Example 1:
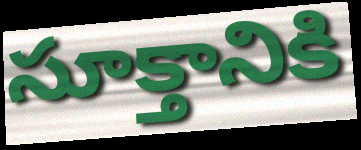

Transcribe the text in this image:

సూక్తానికి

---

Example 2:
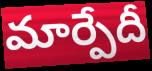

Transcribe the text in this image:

మార్పేదీ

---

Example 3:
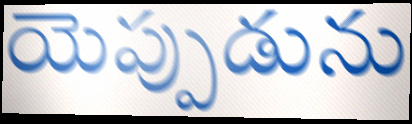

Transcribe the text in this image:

యెప్పుడును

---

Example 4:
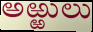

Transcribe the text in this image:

అఱ్ఱులు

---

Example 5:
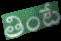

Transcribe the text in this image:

తింటే